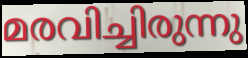
മരവിച്ചിരുന്നു